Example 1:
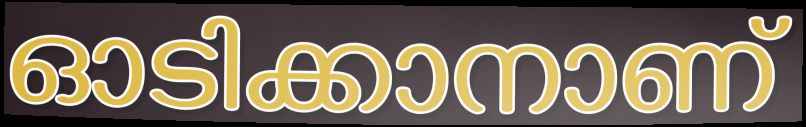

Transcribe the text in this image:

ഓടിക്കാനാണ്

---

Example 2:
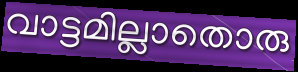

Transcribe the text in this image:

വാട്ടമില്ലാതൊരു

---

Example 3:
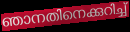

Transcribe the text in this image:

ഞാനതിനെക്കുറിച്ച്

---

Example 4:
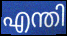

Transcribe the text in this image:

എന്തി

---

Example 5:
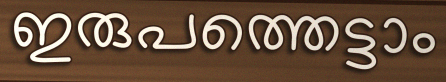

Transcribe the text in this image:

ഇരുപത്തെട്ടാം